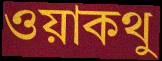
ওয়াকথু